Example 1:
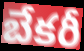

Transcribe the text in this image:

బేకరీ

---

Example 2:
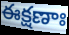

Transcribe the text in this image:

ఈక్షణాః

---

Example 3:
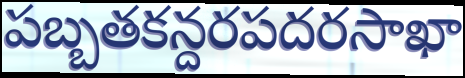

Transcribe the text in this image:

పబ్బతకన్దరపదరసాఖా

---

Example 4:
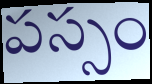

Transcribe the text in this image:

పస్సం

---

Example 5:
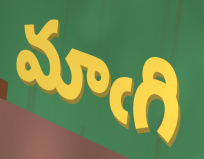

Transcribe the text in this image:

మాఁగి